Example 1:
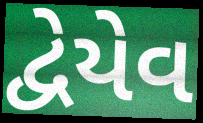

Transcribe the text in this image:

દ્વેયેવ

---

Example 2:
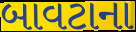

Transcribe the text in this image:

બાવટાના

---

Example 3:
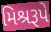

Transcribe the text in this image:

મિશ્રરૂપે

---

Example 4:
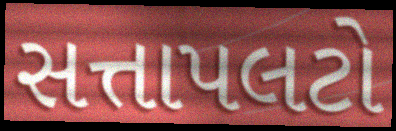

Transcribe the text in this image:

સત્તાપલટો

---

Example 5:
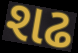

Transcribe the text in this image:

શઢ